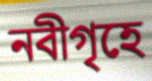
নবীগৃহে